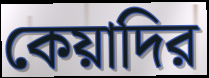
কেয়াদির